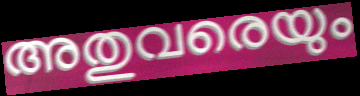
അതുവരെയും